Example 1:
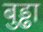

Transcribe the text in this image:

बुड्ढा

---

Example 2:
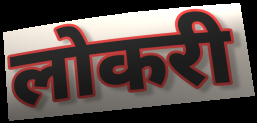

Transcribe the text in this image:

लोकरी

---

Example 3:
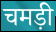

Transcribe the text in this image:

चमड़ी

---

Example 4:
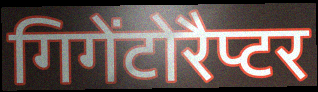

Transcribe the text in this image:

गिगेंटोरैप्टर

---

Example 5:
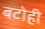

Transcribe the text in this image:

बटोही